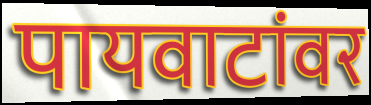
पायवाटांवर